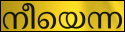
നീയെന്ന